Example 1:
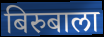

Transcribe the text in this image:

बिरुबाला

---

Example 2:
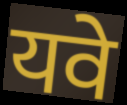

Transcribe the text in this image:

यवे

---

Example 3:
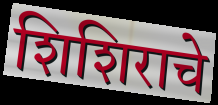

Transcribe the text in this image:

शिशिराचे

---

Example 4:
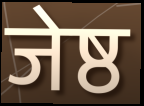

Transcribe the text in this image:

जेष्ठ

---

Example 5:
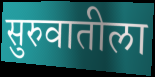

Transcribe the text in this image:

सुरुवातीला